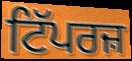
ਟਿੱਪਰਜ਼